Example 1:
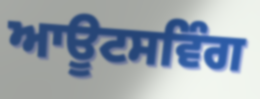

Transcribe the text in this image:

ਆਊਟਸਵਿੰਗ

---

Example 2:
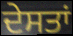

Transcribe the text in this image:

ਦੇਸਤਾਂ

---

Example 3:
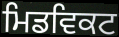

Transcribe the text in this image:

ਮਿਡਵਿਕਟ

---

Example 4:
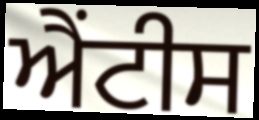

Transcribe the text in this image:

ਐਂਟੀਸ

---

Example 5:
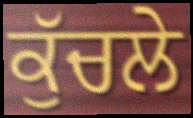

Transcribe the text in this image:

ਕੁੱਚਲੇ